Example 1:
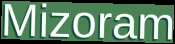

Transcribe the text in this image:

Mizoram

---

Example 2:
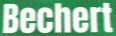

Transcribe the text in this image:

Bechert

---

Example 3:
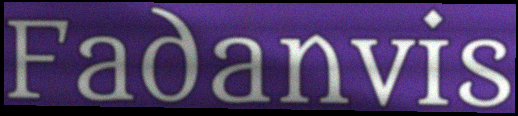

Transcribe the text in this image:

Fadanvis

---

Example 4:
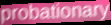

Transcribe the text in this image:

probationary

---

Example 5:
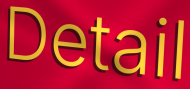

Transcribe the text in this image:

Detail